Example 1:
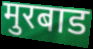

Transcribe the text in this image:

मुरबाड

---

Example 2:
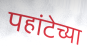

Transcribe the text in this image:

पहांटेच्या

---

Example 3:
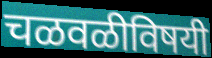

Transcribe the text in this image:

चळवळीविषयी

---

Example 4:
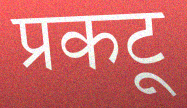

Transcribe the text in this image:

प्रकटू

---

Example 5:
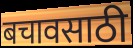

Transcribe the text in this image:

बचावसाठी